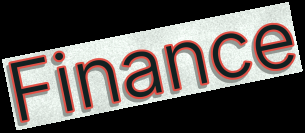
Finance